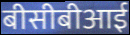
बीसीबीआई